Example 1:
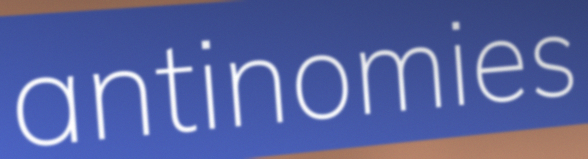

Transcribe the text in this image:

antinomies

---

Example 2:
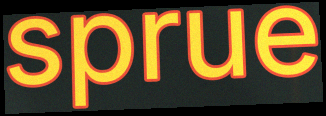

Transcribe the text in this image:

sprue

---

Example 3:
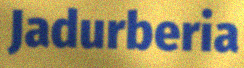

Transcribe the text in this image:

Jadurberia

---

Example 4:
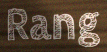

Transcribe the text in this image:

Rang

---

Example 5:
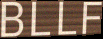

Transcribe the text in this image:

BLLF